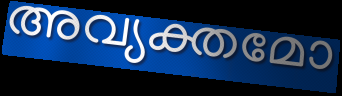
അവ്യക്തമോ